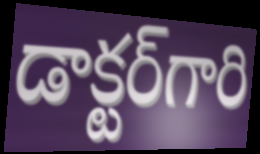
డాక్టర్‌గారి